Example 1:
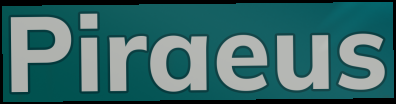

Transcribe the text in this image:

Piraeus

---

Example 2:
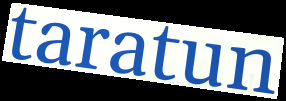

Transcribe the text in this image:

taratun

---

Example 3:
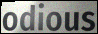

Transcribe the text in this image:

odious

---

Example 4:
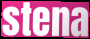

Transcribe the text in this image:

stena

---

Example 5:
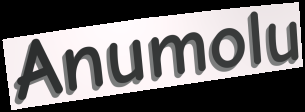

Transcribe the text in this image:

Anumolu